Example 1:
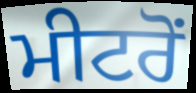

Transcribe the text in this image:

ਮੀਟਰੋਂ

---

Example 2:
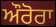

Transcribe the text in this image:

ਔਰੋਰਾ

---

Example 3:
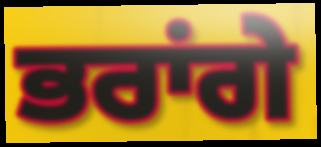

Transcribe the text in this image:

ਭਰਾਂਗੇ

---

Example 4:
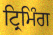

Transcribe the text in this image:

ਟ੍ਰਿਮਿੰਗ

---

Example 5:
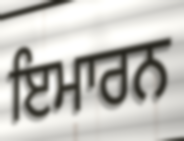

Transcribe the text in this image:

ਇਮਾਰਨ